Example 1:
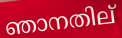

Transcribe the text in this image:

ഞാനതില്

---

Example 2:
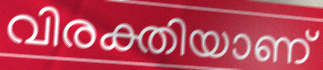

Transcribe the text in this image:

വിരക്തിയാണ്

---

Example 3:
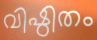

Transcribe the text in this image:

വിഷ്ഠിതം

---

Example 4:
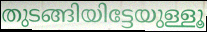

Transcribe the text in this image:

തുടങ്ങിയിട്ടേയുള്ളൂ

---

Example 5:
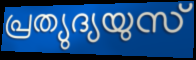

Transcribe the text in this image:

പ്രത്യുദ്യയുസ്